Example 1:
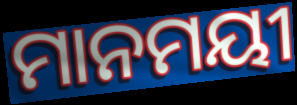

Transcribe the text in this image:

ମାନମୟୀ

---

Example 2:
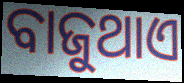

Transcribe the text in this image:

ବାଜୁଥାଏ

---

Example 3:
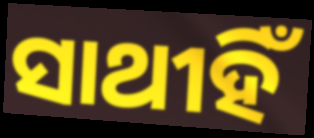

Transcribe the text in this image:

ସାଥୀହିଁ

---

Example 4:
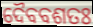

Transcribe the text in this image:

ଦୈବବଶତଃ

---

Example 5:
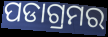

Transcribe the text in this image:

ପଡାଗ୍ରମର